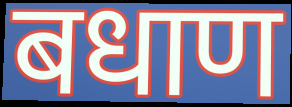
बधाण